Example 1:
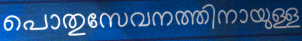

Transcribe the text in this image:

പൊതുസേവനത്തിനായുള്ള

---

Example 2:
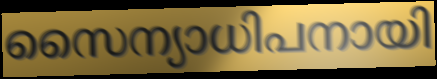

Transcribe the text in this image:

സൈന്യാധിപനായി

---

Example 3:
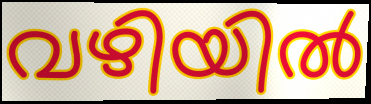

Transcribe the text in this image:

വഴിയിൽ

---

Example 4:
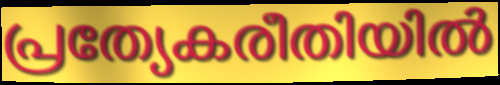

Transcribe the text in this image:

പ്രത്യേകരീതിയിൽ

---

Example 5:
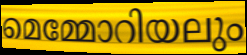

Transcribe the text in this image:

മെമ്മോറിയലും